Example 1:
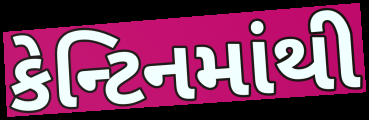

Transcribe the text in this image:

કેન્ટિનમાંથી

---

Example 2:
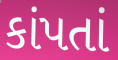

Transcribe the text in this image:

કાંપતાં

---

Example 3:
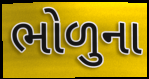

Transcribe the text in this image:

ભોળુના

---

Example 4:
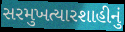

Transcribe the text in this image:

સરમુખત્યારશાહીનું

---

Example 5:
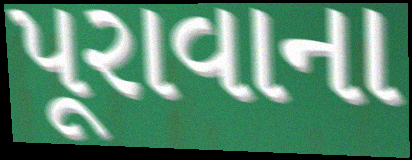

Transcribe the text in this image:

પૂરાવાના